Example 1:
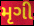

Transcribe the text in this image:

મૃગી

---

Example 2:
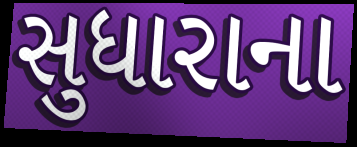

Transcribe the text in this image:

સુધારાના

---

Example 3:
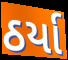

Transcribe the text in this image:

ઠર્યા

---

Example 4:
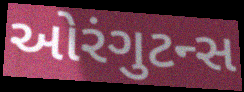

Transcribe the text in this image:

ઓરંગુટન્સ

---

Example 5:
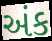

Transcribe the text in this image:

અંક